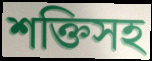
শক্তিসহ